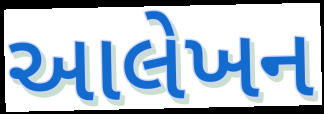
આલેખન